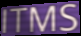
ITMS